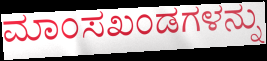
ಮಾಂಸಖಂಡಗಳನ್ನು